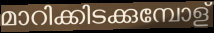
മാറിക്കിടക്കുമ്പോള്